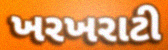
ખરખરાટી